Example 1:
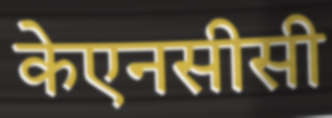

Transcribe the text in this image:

केएनसीसी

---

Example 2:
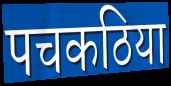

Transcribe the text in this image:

पचकठिया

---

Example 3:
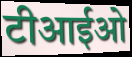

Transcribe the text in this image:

टीआईओ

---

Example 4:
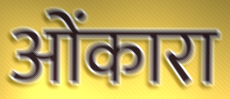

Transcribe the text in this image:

ओंकारा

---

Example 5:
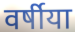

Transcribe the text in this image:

वर्षीया